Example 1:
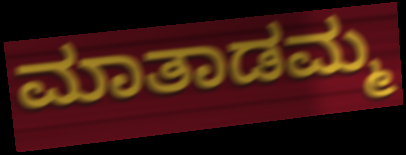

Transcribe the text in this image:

ಮಾತಾಡಮ್ಮ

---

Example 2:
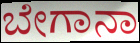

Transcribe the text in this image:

ಬೇಗಾನಾ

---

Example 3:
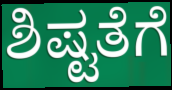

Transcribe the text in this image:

ಶಿಷ್ಟತೆಗೆ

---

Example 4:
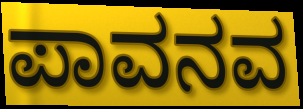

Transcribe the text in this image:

ಪಾವನವ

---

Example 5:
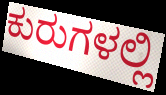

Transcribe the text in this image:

ಕುರುಗಳಲ್ಲಿ